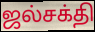
ஜல்சக்தி